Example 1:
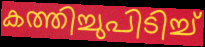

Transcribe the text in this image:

കത്തിച്ചുപിടിച്ച്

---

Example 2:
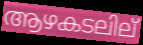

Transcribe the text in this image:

ആഴകടലില്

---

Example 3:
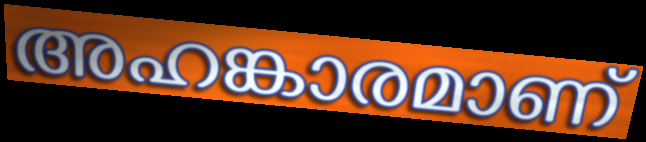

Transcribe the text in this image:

അഹങ്കാരമാണ്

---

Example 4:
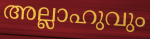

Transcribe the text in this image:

അല്ലാഹുവും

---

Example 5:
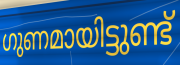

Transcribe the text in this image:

ഗുണമായിട്ടുണ്ട്